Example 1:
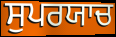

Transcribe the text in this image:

ਸੁਪਰਯਾਚ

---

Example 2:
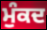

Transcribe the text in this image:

ਮੁੰਕਦ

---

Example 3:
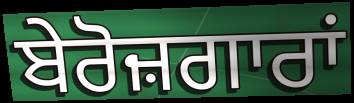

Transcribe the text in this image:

ਬੇਰੋਜ਼ਗਾਰਾਂ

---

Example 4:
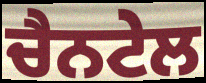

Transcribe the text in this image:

ਚੈਨਟੇਲ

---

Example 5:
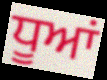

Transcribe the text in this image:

ਧੂਆਂ